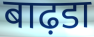
बाढ़डा